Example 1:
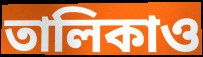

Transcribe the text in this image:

তালিকাও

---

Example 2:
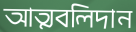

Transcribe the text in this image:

আত্মবলিদান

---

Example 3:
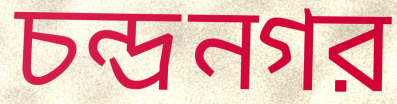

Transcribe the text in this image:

চন্দ্রনগর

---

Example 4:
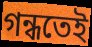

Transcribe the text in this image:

গন্ধতেই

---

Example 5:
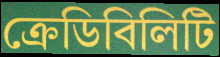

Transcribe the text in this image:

ক্রেডিবিলিটি